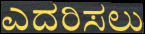
ಎದರಿಸಲು